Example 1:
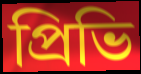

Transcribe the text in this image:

প্রিভি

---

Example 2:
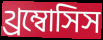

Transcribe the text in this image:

থ্রম্বোসিস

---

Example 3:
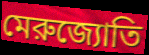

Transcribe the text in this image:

মেরুজ্যোতি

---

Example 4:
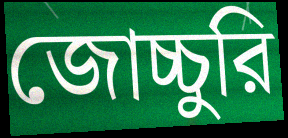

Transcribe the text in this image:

জোচ্চুরি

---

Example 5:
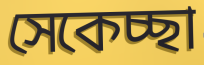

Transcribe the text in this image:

সেকেচ্ছা